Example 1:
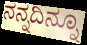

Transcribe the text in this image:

ನನ್ನದಿನ್ನೂ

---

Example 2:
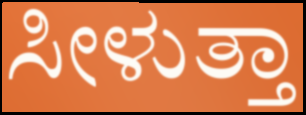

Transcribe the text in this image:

ಸೀಳುತ್ತಾ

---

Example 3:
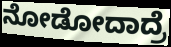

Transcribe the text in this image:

ನೋಡೋದಾದ್ರೆ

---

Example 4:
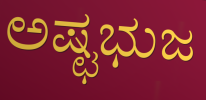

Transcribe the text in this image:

ಅಷ್ಟಭುಜ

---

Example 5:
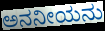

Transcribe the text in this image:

ಅನನೀಯನು